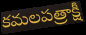
కమలపత్రాక్షీ